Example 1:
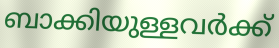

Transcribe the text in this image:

ബാക്കിയുള്ളവർക്ക്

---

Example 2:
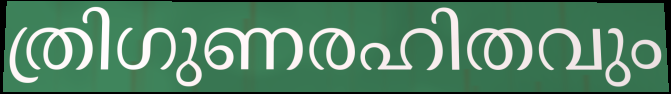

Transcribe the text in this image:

ത്രിഗുണരഹിതവും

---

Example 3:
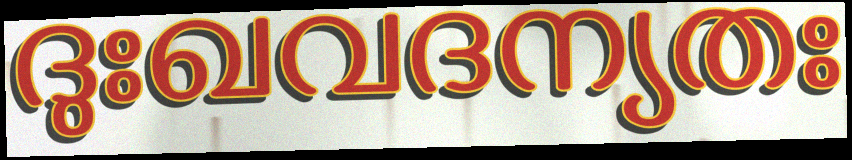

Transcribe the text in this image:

ദുഃഖവദന്യതഃ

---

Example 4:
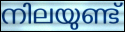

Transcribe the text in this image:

നിലയുണ്ട്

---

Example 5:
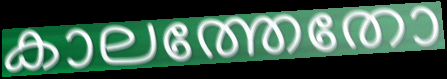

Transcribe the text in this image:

കാലത്തേതോ